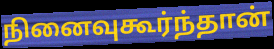
நினைவுகூர்ந்தான்